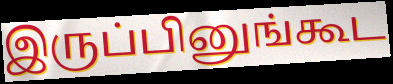
இருப்பினுங்கூட